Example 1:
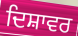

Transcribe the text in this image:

ਦਿਸ਼ਾਵਰ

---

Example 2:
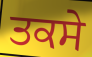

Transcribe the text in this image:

ਤਕਸੇ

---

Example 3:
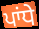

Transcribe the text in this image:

ਪਾਂਧੇ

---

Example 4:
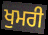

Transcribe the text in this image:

ਖੁਮਰੀ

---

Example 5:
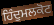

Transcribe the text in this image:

ਹਿੰਦੁਮਲਕੋਟ